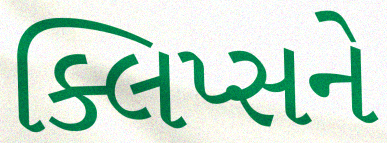
ક્લિપ્સને